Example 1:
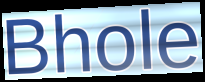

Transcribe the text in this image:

Bhole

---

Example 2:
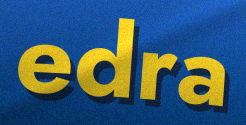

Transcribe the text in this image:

edra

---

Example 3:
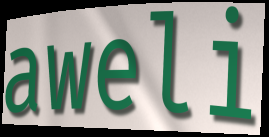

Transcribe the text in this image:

aweli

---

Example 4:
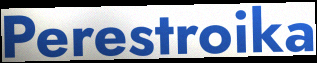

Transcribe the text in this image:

Perestroika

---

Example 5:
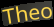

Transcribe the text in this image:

Theo